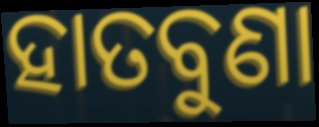
ହାତବୁଣା